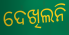
ଦେଖିଲନି